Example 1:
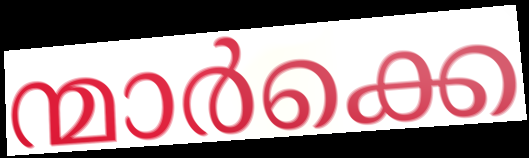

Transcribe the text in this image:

ന്മാർക്കെ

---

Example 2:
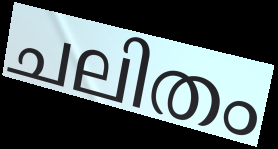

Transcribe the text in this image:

ചലിതം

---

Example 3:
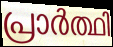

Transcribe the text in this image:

പ്രാർത്ഥി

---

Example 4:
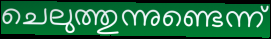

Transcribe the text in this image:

ചെലുത്തുന്നുണ്ടെന്ന്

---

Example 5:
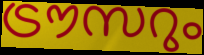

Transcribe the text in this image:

ട്രൗസറും